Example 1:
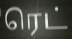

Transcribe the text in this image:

ரெட்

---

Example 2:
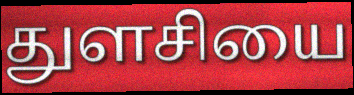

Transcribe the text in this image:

துளசியை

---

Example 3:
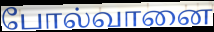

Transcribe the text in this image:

போல்வானை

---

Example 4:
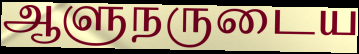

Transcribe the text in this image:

ஆளுநருடைய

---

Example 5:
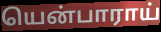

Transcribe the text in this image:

யென்பாராய்